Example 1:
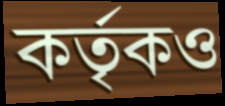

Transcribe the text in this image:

কর্তৃকও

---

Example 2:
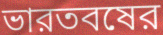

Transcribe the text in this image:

ভারতবষের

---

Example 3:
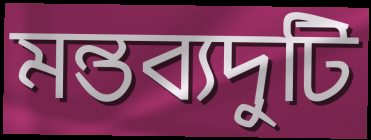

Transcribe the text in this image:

মন্তব্যদুটি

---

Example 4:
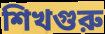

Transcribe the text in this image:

শিখগুরু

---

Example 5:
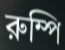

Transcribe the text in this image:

রুম্পি